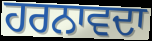
ਹਰਨਾਵਦਾ